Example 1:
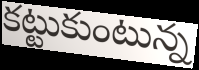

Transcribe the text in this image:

కట్టుకుంటున్న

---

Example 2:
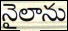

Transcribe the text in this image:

నైలాను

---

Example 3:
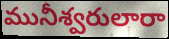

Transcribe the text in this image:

మునీశ్వరులారా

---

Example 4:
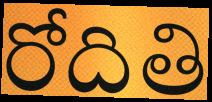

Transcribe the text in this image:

రోదితి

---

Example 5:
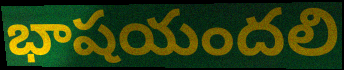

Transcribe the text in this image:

భాషయందలి